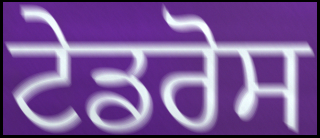
ਟੇਡਰੋਸ